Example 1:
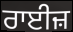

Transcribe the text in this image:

ਰਾਈਜ਼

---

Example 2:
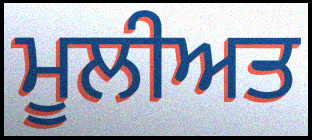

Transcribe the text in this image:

ਮੂਲੀਅਤ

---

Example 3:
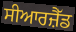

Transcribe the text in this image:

ਸੀਆਰਜ਼ੈੱਡ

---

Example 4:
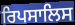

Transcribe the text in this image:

ਰਿਪਸਾਲਿਸ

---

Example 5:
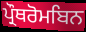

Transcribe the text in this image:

ਪ੍ਰੌਥਰੋਮਬਿਨ